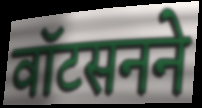
वॉटसनने